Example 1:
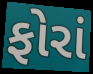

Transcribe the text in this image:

ફોરાં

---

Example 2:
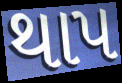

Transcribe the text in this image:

થાપ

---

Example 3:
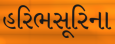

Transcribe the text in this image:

હરિભસૂરિના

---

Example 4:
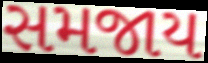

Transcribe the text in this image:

સમજાય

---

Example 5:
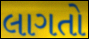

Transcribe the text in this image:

લાગતો